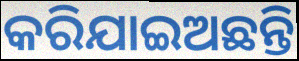
କରିଯାଇଅଛନ୍ତି